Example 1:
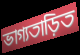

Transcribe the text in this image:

ভাগ্যতাড়িত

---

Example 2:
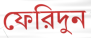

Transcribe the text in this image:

ফেরিদুন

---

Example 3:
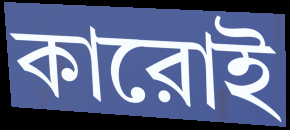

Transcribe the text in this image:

কারোই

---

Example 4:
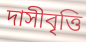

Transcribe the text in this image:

দাসীবৃত্তি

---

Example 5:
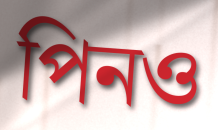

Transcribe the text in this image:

পিনও